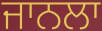
ਜਾਨਲਾ